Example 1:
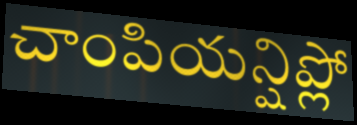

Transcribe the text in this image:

చాంపియన్షిప్లో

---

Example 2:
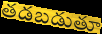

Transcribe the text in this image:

తడబడుతూ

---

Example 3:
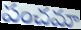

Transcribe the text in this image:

పంచమా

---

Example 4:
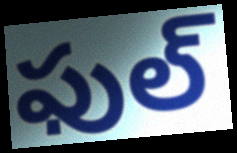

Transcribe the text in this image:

ఫుల్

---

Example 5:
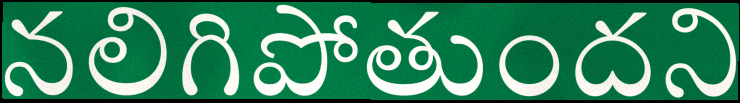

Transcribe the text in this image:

నలిగిపోతుందని